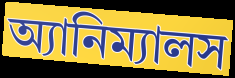
অ্যানিম্যালস